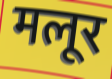
मलूर